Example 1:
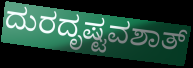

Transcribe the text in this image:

ದುರದೃಷ್ಟವಶಾತ್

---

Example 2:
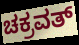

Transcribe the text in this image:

ಚಕ್ರವತ್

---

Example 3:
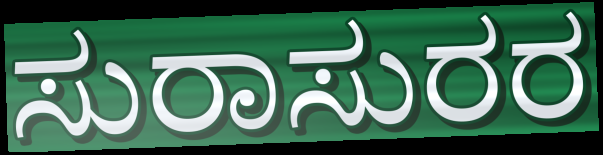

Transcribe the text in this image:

ಸುರಾಸುರರ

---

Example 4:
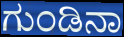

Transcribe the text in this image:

ಗುಂಡಿನಾ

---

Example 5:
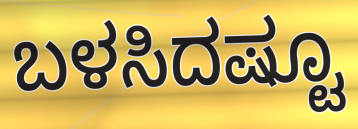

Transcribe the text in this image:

ಬಳಸಿದಷ್ಟೂ